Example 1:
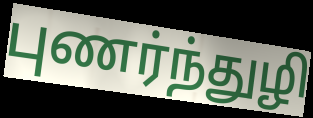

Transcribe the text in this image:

புணர்ந்துழி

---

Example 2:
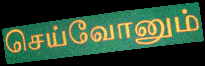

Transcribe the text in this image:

செய்வோனும்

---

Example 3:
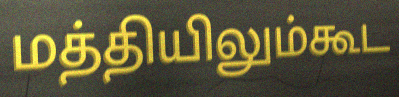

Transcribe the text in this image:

மத்தியிலும்கூட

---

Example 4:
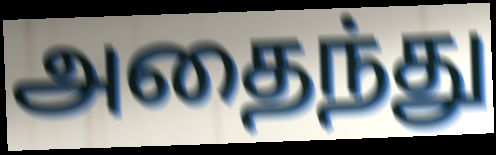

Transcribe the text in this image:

அதைந்து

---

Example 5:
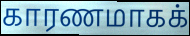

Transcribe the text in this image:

காரணமாகக்